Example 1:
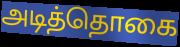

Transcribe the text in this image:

அடித்தொகை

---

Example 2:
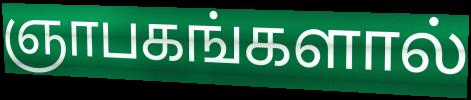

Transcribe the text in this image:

ஞாபகங்களால்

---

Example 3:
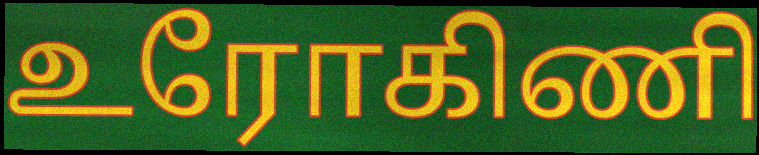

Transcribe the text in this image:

உரோகிணி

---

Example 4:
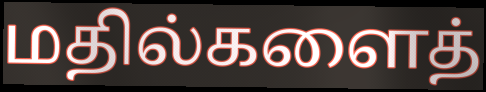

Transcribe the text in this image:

மதில்களைத்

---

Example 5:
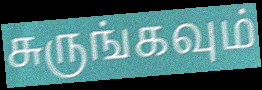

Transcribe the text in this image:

சுருங்கவும்